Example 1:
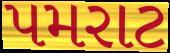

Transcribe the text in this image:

પમરાટ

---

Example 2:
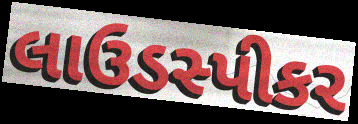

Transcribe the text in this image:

લાઉડસ્પીકર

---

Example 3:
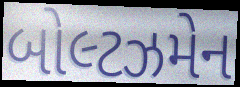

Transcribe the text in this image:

બોલ્ટઝમેન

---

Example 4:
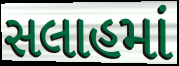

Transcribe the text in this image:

સલાહમાં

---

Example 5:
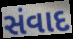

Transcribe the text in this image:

સંવાદ